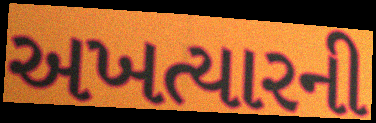
અખત્યારની